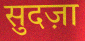
सुदज़ा